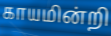
காயமின்றி